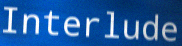
Interlude